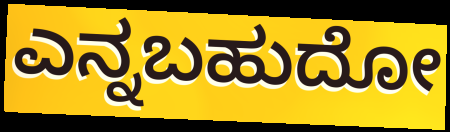
ಎನ್ನಬಹುದೋ